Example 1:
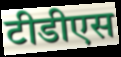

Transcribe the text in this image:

टीडीएस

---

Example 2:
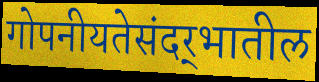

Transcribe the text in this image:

गोपनीयतेसंदर्भातील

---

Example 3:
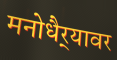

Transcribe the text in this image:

मनोधैर्यावर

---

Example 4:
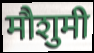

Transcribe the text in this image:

मौशुमी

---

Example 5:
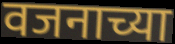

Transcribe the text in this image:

वजनाच्या